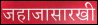
जहाजासारखी